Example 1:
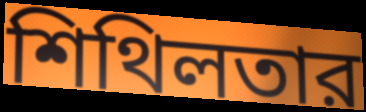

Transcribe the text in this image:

শিথিলতার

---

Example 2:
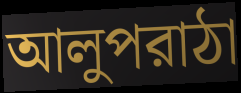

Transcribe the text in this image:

আলুপরাঠা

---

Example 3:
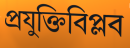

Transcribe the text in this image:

প্রযুক্তিবিপ্লব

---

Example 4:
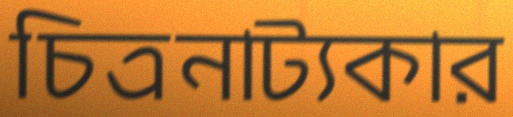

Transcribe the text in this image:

চিত্রনাট্যকার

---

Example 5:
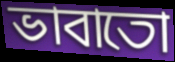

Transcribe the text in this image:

ভাবাতো